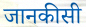
जानकीसी